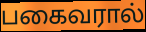
பகைவரால்